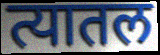
त्यातल